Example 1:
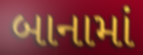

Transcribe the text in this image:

બાનામાં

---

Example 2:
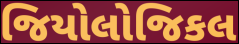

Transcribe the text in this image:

જિયોલોજિકલ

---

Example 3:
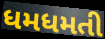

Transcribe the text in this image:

ધમધમતી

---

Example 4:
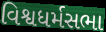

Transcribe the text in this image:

વિશ્વધર્મસભા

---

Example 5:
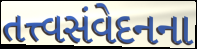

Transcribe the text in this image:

તત્ત્વસંવેદનના